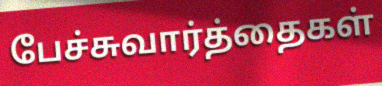
பேச்சுவார்த்தைகள்